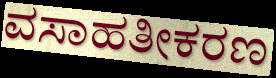
ವಸಾಹತೀಕರಣ